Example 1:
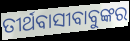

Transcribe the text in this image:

ତୀର୍ଥବାସୀବାବୁଙ୍କର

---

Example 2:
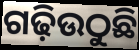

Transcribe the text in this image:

ଗଢ଼ିଉଠୁଛି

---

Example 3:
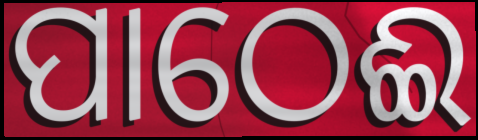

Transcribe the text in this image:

ପାଠେଈ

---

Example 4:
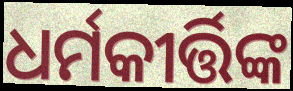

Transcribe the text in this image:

ଧର୍ମକୀର୍ତ୍ତିଙ୍କ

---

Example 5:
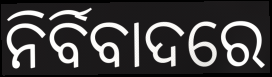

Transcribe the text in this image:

ନିର୍ବିବାଦରେ